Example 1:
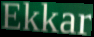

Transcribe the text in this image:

Ekkar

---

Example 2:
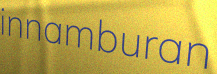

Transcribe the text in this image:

innamburan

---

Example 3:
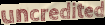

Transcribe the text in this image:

uncredited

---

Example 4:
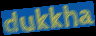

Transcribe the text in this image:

dukkha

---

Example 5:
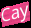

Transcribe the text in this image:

Cay